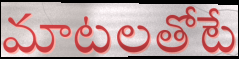
మాటలతోటే